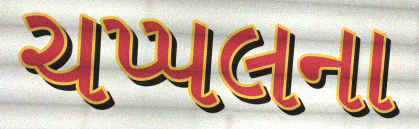
ચપ્પલના